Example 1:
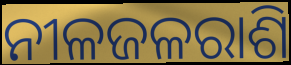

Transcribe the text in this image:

ନୀଳଜଳରାଶି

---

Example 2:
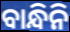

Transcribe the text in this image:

ବାନ୍ଧିନି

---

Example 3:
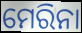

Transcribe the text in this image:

ମେରିନା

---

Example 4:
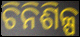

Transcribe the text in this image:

ଚିନିଶିଳ୍ପ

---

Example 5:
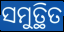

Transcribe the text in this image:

ସମୁତ୍ଥିତ